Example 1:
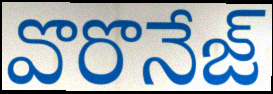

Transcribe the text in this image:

వొరొనేజ్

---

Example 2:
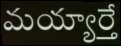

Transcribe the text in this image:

మయ్యార్తే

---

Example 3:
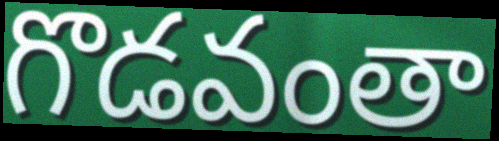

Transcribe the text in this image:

గొడవంతా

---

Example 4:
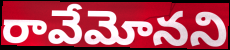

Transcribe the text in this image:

రావేమోనని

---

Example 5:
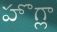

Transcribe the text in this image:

హొగ్లా